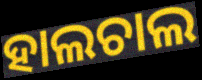
ହାଲଚାଲ